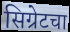
सिग्रेटचा